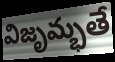
విజృమ్భతే